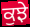
ਕੁਝੇ